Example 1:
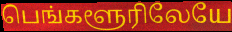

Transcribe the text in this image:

பெங்களூரிலேயே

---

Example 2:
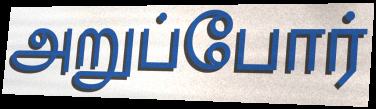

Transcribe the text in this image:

அறுப்போர்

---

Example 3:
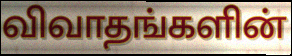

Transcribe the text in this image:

விவாதங்களின்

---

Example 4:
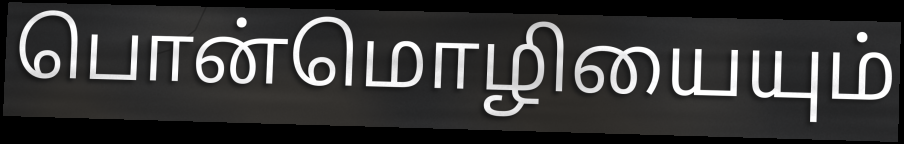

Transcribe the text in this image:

பொன்மொழியையும்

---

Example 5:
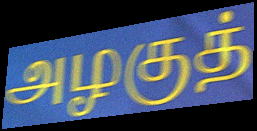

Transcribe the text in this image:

அழகுத்